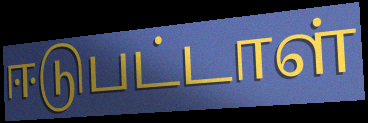
ஈடுபட்டாள்